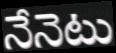
నేనెటు